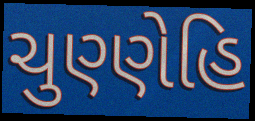
ચુણ્ણેહિ